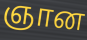
ஞான